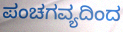
ಪಂಚಗವ್ಯದಿಂದ